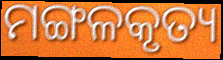
ମଙ୍ଗଳକୃତ୍ୟ